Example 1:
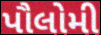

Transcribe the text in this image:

પૌલોમી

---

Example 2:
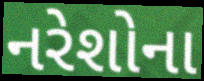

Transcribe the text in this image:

નરેશોના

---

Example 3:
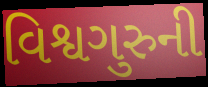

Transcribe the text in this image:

વિશ્વગુરુની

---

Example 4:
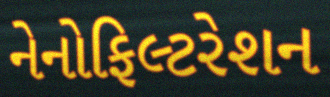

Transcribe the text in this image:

નેનોફિલ્ટરેશન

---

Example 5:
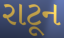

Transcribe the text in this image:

રાટૂન